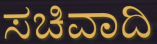
ಸಚಿವಾದಿ